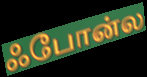
ஃபோன்ல